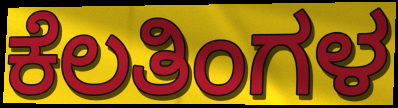
ಕೆಲತಿಂಗಳ